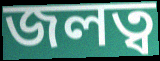
জলত্ব